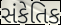
સંકેતિક